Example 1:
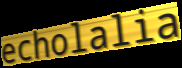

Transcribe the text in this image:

echolalia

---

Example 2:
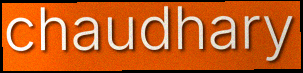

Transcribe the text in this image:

chaudhary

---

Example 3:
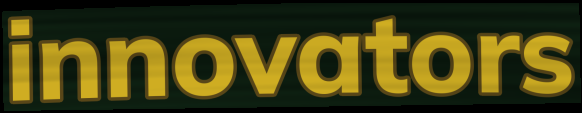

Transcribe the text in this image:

innovators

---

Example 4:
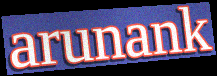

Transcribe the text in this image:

arunank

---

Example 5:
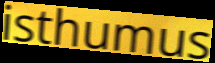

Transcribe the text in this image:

isthumus